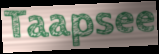
Taapsee